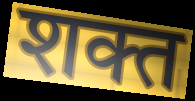
शक्त